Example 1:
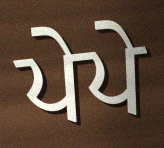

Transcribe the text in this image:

ਪੇਪੇ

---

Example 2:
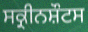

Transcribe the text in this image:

ਸਕ੍ਰੀਨਸ਼ੌਟਸ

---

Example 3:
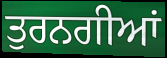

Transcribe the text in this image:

ਤੁਰਨਗੀਆਂ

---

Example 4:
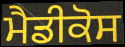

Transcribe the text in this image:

ਮੈਡੀਕੋਸ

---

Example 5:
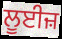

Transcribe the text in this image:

ਲੂਈਜ਼